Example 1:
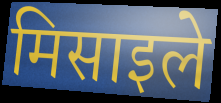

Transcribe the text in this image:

मिसाइले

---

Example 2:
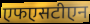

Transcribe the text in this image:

एफएसटीएन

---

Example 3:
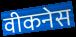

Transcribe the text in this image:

वीकनेस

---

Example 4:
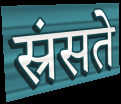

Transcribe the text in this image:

स्रंसते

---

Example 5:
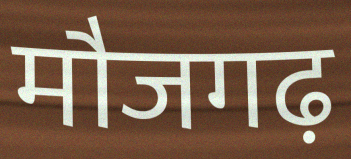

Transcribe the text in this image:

मौजगढ़